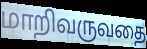
மாறிவருவதை